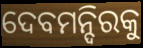
ଦେବମନ୍ଦିରକୁ